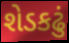
શેડકઢું